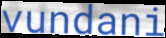
vundani